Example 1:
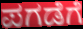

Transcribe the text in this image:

ಪಗಡೆಗೆ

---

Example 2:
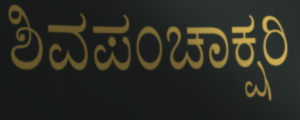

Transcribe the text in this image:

ಶಿವಪಂಚಾಕ್ಷರಿ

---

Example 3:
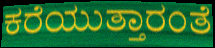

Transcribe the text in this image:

ಕರೆಯುತ್ತಾರಂತೆ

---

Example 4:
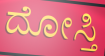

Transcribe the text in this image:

ದೋಸ್ತಿ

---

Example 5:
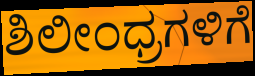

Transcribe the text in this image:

ಶಿಲೀಂಧ್ರಗಳಿಗೆ